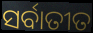
ସର୍ବାତୀତ